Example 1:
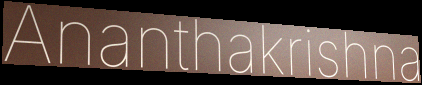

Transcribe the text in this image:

Ananthakrishna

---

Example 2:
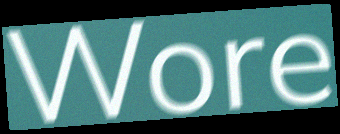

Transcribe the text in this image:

Wore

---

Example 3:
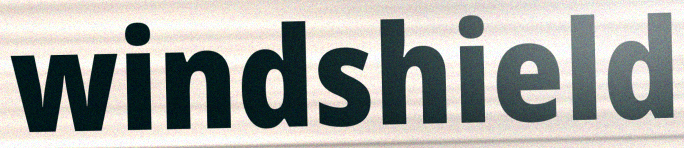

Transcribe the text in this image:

windshield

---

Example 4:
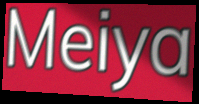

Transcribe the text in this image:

Meiya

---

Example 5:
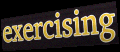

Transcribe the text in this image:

exercising